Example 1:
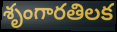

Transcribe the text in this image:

శృంగారతిలక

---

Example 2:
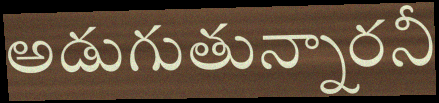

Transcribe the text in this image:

అడుగుతున్నారనీ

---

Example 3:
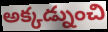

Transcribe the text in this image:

అక్కడ్నుంచి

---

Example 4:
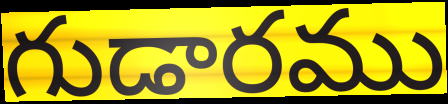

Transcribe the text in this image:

గుడారము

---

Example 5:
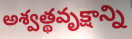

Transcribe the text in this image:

అశ్వత్థవృక్షాన్ని